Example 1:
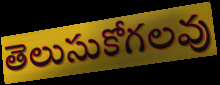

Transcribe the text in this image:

తెలుసుకోగలవు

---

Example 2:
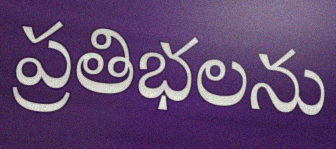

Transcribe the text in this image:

ప్రతిభలను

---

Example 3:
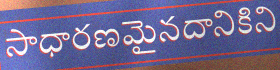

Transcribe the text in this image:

సాధారణమైనదానికిని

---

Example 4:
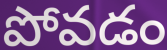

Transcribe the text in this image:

పోవడం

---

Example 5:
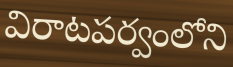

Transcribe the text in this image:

విరాటపర్వంలోని